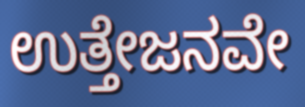
ಉತ್ತೇಜನವೇ